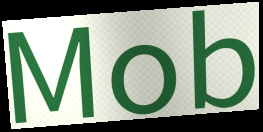
Mob